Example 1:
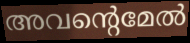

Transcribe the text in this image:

അവന്റെമേൽ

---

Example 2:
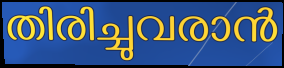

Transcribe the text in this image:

തിരിച്ചുവരാൻ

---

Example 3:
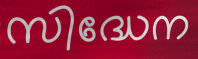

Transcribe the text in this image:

സിദ്ധേന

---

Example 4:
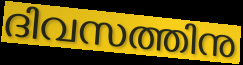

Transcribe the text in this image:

ദിവസത്തിനു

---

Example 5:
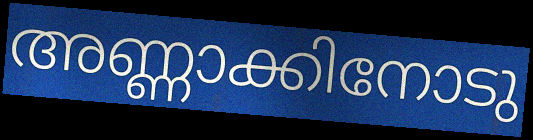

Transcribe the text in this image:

അണ്ണാക്കിനോടു